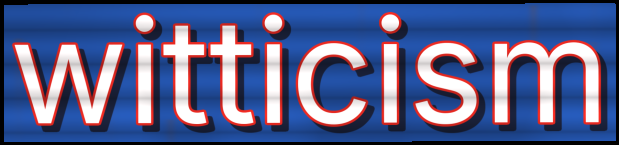
witticism